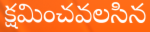
క్షమించవలసిన